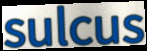
sulcus